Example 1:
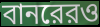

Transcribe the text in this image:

বানরেরও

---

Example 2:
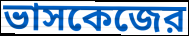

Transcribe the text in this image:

ভাসকেজের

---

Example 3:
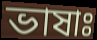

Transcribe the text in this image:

ভাষাঃ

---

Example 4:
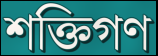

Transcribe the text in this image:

শক্তিগণ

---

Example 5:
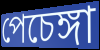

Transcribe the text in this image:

পেচেঙ্গা